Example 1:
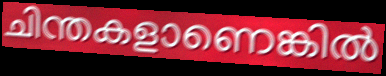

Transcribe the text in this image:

ചിന്തകളാണെങ്കിൽ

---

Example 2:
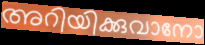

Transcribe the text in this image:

അറിയിക്കുവാനോ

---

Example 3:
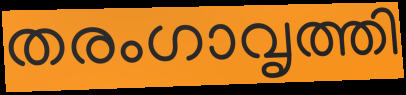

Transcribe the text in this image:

തരംഗാവൃത്തി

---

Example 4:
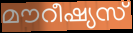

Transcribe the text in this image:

മൗറീഷ്യസ്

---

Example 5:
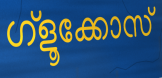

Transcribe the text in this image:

ഗ്ളൂക്കോസ്